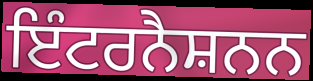
ਇੰਟਰਨੈਸ਼ਨਨ